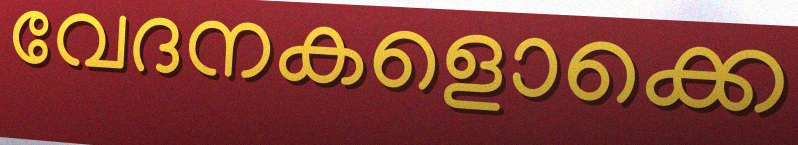
വേദനകളൊക്കെ